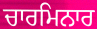
ਚਾਰਮਿਨਾਰ